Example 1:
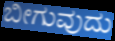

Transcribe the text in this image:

ಬೀಗುವುದು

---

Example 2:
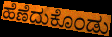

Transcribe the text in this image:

ಹೆಣೆದುಕೊಂಡು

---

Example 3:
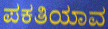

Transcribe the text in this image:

ಪಕತಿಯಾವ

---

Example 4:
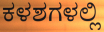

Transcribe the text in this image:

ಕಳಶಗಳಲ್ಲಿ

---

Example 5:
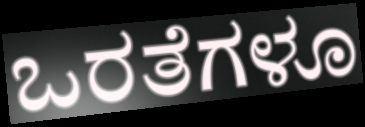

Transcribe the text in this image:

ಒರತೆಗಳೂ